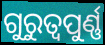
ଗୁରୁତ୍ୱପୁର୍ଣ୍ଣ